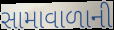
સામાવાળાની